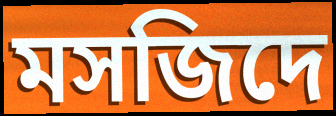
মসজিদে